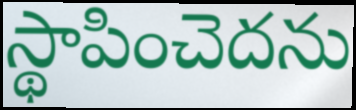
స్థాపించెదను